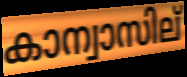
കാന്വാസില്